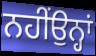
ਨਹੀਂਉਨ੍ਹਾਂ